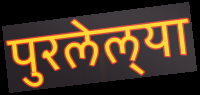
पुरलेल्या